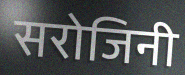
सरोजिनी